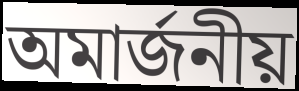
অমার্জনীয়